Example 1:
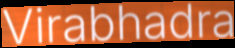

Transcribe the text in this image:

Virabhadra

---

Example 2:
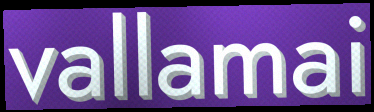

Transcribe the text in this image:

vallamai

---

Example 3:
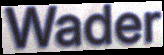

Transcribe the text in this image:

Wader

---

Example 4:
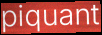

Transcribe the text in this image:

piquant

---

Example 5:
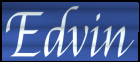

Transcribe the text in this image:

Edvin